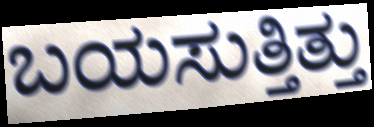
ಬಯಸುತ್ತಿತ್ತು